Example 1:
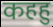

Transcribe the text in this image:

कहहु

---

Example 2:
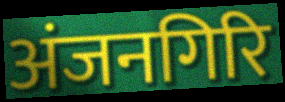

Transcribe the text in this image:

अंजनगिरि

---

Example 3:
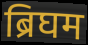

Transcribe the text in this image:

ब्रिघम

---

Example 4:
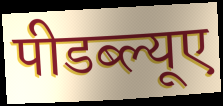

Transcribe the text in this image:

पीडब्ल्यूए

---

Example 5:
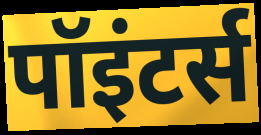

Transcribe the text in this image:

पॉइंटर्स